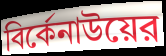
বির্কেনাউয়ের